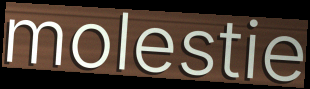
molestie